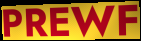
PREWF